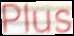
Plus